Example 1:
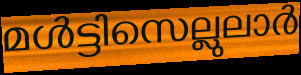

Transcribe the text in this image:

മൾട്ടിസെല്ലുലാർ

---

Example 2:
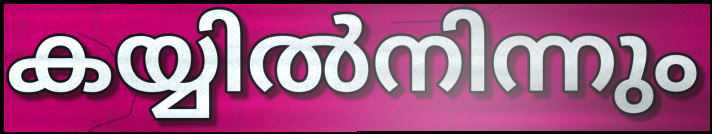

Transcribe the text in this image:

കയ്യിൽനിന്നും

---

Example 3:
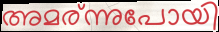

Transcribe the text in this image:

അമര്ന്നുപോയി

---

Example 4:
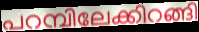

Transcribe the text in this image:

പറമ്പിലേക്കിറങ്ങി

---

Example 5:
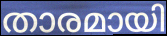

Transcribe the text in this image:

താരമായി